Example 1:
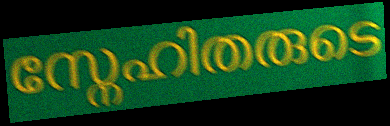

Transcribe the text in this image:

സ്നേഹിതരുടെ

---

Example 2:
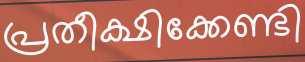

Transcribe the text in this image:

പ്രതീക്ഷിക്കേണ്ടി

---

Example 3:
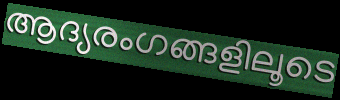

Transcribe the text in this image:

ആദ്യരംഗങ്ങളിലൂടെ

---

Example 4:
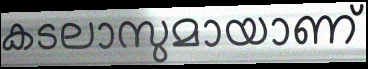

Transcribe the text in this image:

കടലാസുമായാണ്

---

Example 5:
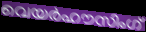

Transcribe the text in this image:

വെയർഹൗസിംഗ്